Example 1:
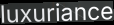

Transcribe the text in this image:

luxuriance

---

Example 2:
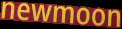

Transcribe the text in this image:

newmoon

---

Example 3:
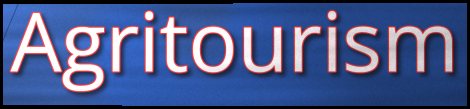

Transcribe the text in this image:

Agritourism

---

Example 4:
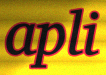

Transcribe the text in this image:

apli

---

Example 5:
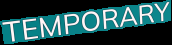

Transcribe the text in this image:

TEMPORARY